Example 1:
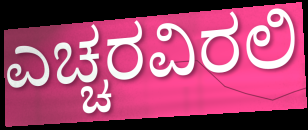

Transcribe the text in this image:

ಎಚ್ಚರವಿರಲಿ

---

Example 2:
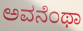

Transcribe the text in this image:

ಅವನೆಂಥಾ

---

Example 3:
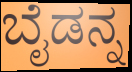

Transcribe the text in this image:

ಬೈಡನ್ನ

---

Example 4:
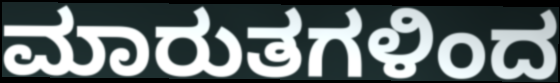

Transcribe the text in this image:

ಮಾರುತಗಳಿಂದ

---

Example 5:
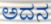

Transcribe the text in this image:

ಅದನ